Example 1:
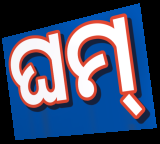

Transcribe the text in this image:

ଘମ୍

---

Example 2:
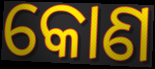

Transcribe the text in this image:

କୋଣ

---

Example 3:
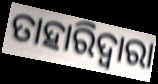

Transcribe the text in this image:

ତାହାରିଦ୍ଵାରା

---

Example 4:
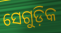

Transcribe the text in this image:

ସେଗୁଡ଼ିକ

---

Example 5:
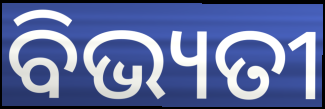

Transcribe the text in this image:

ବିଭ୍ୟତୀ